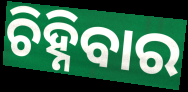
ଚିହ୍ନିବାର